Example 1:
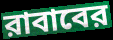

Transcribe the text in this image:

রাবাবের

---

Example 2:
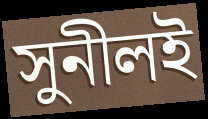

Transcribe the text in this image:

সুনীলই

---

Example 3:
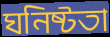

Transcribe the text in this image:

ঘনিষ্টতা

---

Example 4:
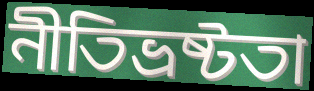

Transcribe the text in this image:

নীতিভ্রষ্টতা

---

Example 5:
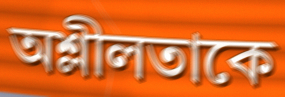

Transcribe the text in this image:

অশ্লীলতাকে